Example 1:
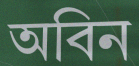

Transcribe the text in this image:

অবিন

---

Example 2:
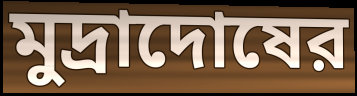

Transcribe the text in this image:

মুদ্রাদোষের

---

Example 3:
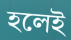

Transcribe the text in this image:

হলেই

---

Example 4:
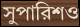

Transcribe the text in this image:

সুপারিশও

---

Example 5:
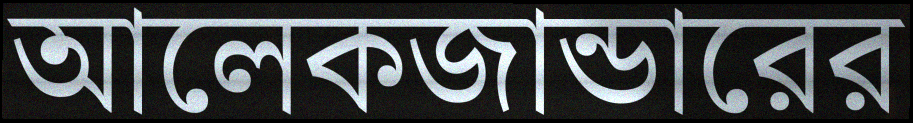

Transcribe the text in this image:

আলেকজান্ডারের